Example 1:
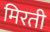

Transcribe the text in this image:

मिरती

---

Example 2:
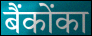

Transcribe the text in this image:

बैंकोंका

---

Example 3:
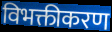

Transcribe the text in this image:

विभक्तीकरण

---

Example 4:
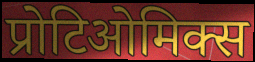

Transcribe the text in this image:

प्रोटिओमिक्स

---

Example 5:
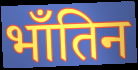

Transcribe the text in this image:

भाँतिन